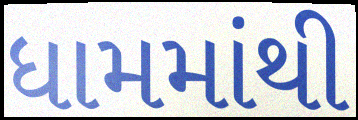
ધામમાંથી